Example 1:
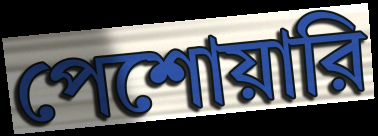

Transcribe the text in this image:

পেশোয়ারি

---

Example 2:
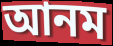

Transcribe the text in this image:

আনম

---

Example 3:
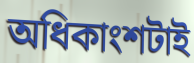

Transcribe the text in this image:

অধিকাংশটাই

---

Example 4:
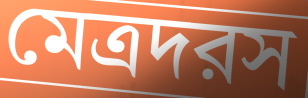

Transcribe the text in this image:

মেত্রদরস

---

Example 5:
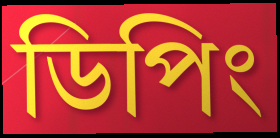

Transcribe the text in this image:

ডিপিং